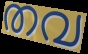
തവ